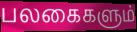
பலகைகளும்